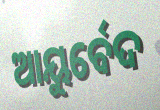
ଆୟୁର୍ବେଦ